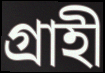
গ্রাহী